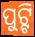
ପୁଟ୍ଟି